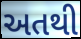
અતથી